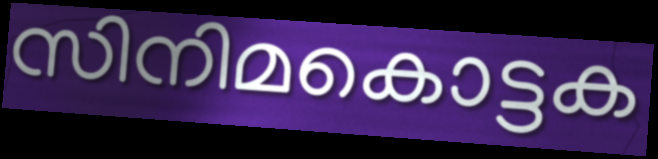
സിനിമകൊട്ടക